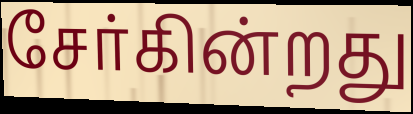
சேர்கின்றது